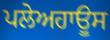
ਪਲੇਅਹਾਊਸ